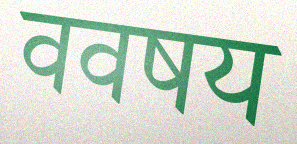
ववषय